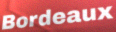
Bordeaux